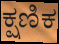
ಕ್ಷಣಿಕ